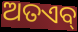
ଅତଏବ୍